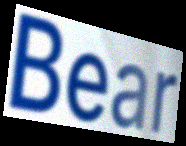
Bear